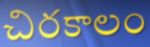
చిరకాలం